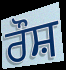
ਰੌਸ਼